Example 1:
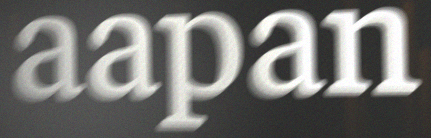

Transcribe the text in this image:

aapan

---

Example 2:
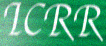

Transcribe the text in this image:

ICRR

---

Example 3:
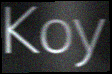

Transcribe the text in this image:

Koy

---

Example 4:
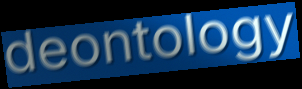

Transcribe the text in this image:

deontology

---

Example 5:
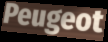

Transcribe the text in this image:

Peugeot